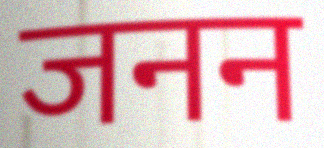
जनन